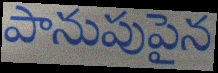
పానుపుపైన